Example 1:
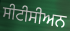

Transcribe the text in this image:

ਸੀਟੀਸੀਅਨ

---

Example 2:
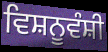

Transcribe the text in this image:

ਵਿਸ਼ਨੂਵੰਸ਼ੀ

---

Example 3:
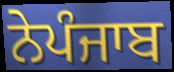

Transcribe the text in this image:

ਨੇਪੰਜਾਬ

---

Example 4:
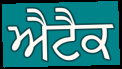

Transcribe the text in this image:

ਐਟੈਕ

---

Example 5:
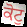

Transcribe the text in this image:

ਕੋਟੁ